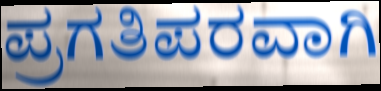
ಪ್ರಗತಿಪರವಾಗಿ